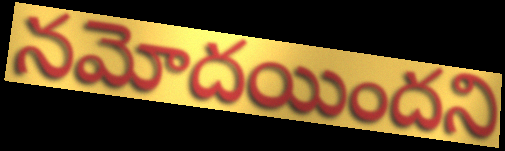
నమోదయిందని